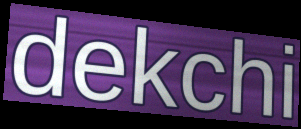
dekchi